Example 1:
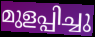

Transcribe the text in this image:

മുളപ്പിച്ചു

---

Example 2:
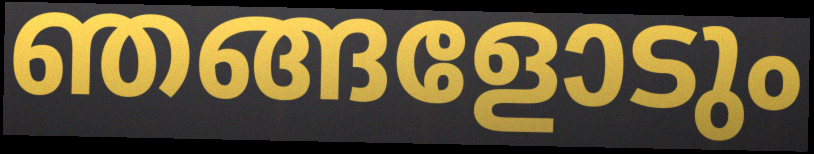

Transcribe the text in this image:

ഞങ്ങളോടും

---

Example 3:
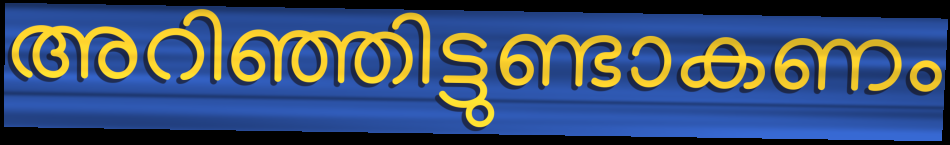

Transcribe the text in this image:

അറിഞ്ഞിട്ടുണ്ടാകണം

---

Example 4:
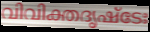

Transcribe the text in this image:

വിവിക്തദൃഷ്ടേഃ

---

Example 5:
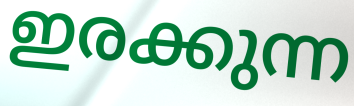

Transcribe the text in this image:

ഇരക്കുന്ന